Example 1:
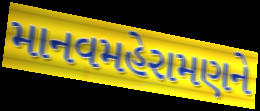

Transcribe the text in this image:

માનવમહેરામણને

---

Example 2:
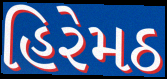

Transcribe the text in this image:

હિરેમઠ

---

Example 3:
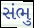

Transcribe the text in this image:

સંભુ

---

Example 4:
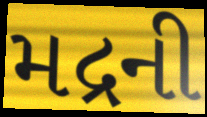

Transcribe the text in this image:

મદ્રની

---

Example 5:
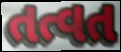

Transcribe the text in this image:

તત્વત